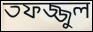
তফজ্জুল